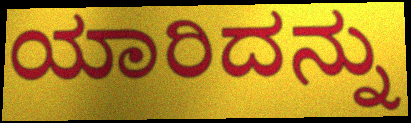
ಯಾರಿದನ್ನು